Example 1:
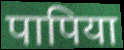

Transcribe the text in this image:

पापिया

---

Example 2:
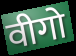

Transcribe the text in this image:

वीगो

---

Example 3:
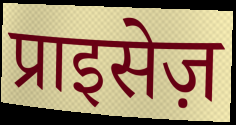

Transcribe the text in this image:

प्राइसेज़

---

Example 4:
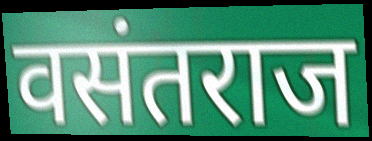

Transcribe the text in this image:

वसंतराज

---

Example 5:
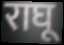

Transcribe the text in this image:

राघू